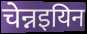
चेन्नइयिन